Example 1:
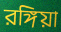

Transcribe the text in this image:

রঙ্গিয়া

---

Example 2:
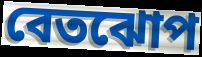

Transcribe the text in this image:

বেতঝোপ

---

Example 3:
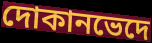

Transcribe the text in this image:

দোকানভেদে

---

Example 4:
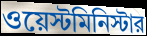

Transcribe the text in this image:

ওয়েস্টমিনিস্টার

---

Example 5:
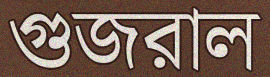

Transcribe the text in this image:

গুজরাল